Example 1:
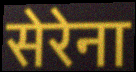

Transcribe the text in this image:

सेरेना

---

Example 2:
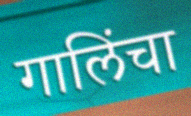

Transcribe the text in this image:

गालिंचा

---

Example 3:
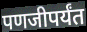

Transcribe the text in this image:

पणजीपर्यंत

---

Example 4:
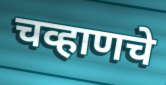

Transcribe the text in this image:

चव्हाणचे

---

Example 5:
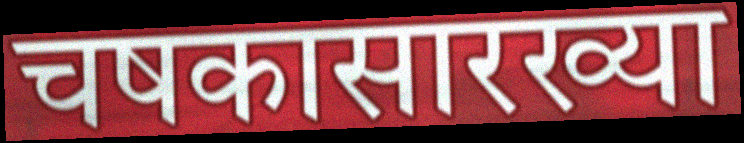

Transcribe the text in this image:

चषकासारख्या